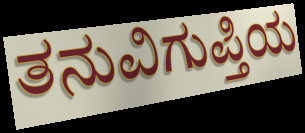
ತನುವಿಗುಪ್ತಿಯ